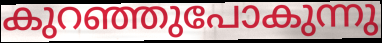
കുറഞ്ഞുപോകുന്നു